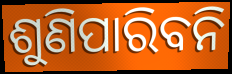
ଶୁଣିପାରିବନି